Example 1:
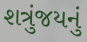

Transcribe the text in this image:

શત્રુંજયનું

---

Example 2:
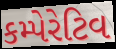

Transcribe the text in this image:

કમ્પેરેટિવ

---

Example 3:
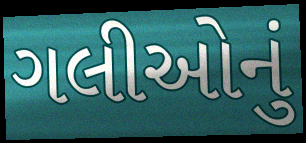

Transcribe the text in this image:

ગલીઓનું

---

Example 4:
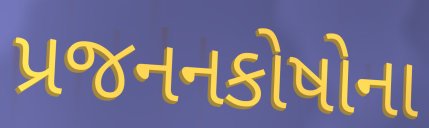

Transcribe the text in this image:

પ્રજનનકોષોના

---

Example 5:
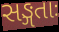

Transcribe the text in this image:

સઙ્ગતાઃ